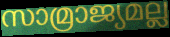
സാമ്രാജ്യമല്ല